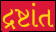
દ્રષ્ટાંત